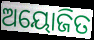
ଅୟୋଜିତ